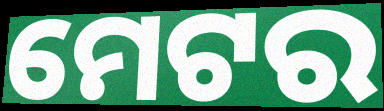
ମେଟର